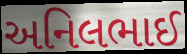
અનિલભાઈ